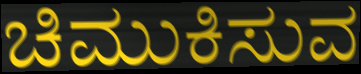
ಚಿಮುಕಿಸುವ